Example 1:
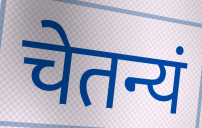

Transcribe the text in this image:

चेतन्यं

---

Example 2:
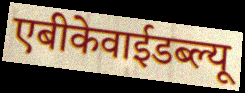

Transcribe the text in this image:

एबीकेवाईडब्ल्यू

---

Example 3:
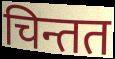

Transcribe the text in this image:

चिन्तत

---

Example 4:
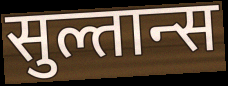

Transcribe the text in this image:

सुल्तान्स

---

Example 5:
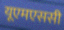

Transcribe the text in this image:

यूएमएससी